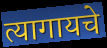
त्यागायचे